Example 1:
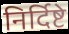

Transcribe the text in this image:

निर्दिष्टे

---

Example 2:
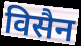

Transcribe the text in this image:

विसैन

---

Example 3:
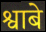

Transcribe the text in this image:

श्वाबे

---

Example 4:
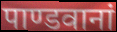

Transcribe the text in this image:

पाण्डवानां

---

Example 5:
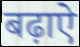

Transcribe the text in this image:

बढ़ाऐ